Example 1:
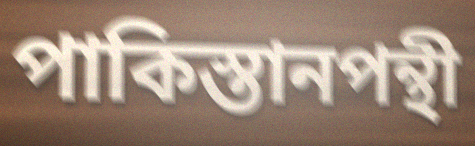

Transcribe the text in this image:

পাকিস্তানপন্থী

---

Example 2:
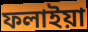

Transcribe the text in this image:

ফলাইয়া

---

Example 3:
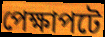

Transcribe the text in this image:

পেক্ষাপটে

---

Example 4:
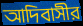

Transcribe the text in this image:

আদিবাসীর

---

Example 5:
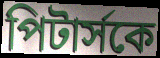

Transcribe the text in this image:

পিটার্সকে